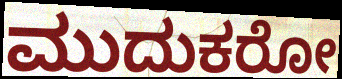
ಮುದುಕರೋ